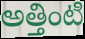
అత్తింటి